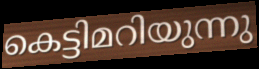
കെട്ടിമറിയുന്നു